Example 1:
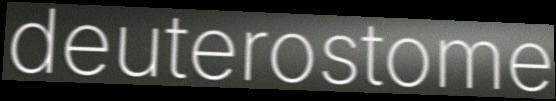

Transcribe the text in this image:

deuterostome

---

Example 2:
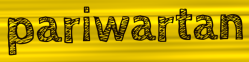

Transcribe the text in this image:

pariwartan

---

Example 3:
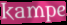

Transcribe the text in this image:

kampe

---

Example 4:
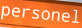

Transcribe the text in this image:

personel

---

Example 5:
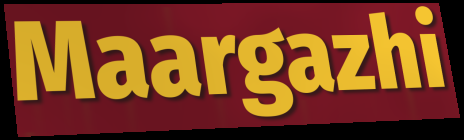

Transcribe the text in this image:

Maargazhi